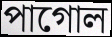
পাগোল